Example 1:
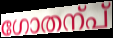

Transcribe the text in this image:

ഗോതന്പ്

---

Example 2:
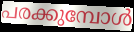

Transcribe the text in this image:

പരക്കുമ്പോൾ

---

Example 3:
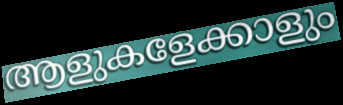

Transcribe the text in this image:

ആളുകളേക്കാളും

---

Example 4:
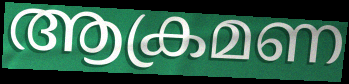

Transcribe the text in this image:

ആക്രമണ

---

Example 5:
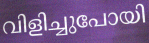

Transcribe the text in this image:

വിളിച്ചുപോയി